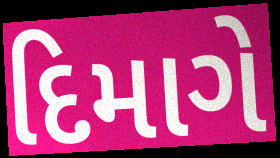
દિમાગે